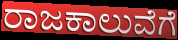
ರಾಜಕಾಲುವೆಗೆ